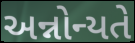
અન્નોન્યતે